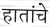
हातांचे